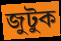
জুটুক